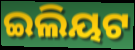
ଇଲିୟଟ